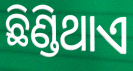
ଛିଣ୍ଡିଥାଏ